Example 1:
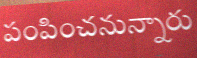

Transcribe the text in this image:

పంపించనున్నారు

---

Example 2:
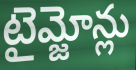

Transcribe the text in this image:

టైమ్జోన్లు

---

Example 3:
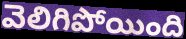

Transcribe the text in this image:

వెలిగిపోయింది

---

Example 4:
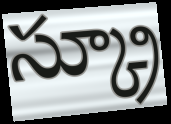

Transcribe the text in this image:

స్క్రూ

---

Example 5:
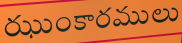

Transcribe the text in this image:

ఝుంకారములు